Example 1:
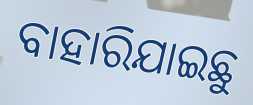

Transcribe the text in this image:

ବାହାରିଯାଇଛୁ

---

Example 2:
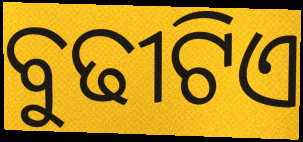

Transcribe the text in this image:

ବୁଢୀଟିଏ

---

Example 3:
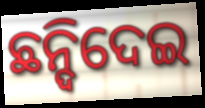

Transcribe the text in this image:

ଛନ୍ଦିଦେଇ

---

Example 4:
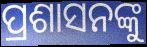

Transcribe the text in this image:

ପ୍ରଶାସନଙ୍କୁ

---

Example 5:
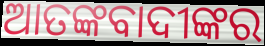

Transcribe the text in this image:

ଆତଙ୍କବାଦୀଙ୍କର